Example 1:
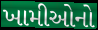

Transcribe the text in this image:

ખામીઓનો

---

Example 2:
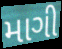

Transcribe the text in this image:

માગી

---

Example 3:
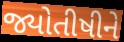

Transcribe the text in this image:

જ્યોતીષીને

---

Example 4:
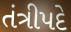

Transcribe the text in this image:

તંત્રીપદે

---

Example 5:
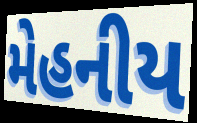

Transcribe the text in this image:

મેહનીય